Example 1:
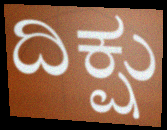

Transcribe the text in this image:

ದಿಕ್ಷು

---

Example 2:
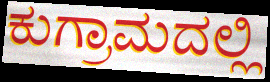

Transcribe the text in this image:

ಕುಗ್ರಾಮದಲ್ಲಿ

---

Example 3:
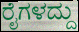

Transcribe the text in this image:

ರೈಗಳದ್ದು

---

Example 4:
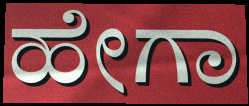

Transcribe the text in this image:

ಹೇಗಾ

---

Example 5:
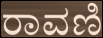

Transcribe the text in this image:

ರಾವಣಿ